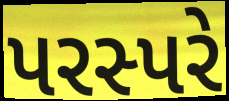
પરસ્પરે